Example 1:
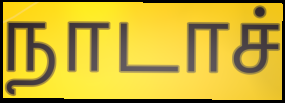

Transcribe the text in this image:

நாடாச்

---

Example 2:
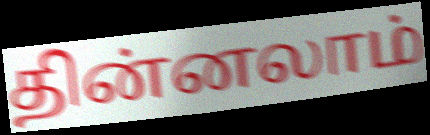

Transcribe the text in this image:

தின்னலாம்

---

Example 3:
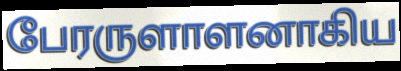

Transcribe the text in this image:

பேரருளாளனாகிய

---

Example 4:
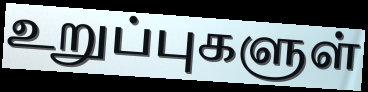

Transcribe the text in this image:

உறுப்புகளுள்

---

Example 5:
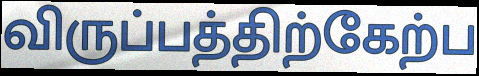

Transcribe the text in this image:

விருப்பத்திற்கேற்ப